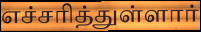
எச்சரித்துள்ளார்